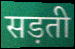
सड़ती